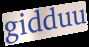
gidduu